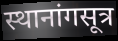
स्थानांगसूत्र